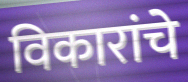
विकारांचे